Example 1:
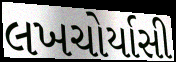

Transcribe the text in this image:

લખચોર્યાસી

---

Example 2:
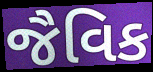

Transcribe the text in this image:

જૈવિક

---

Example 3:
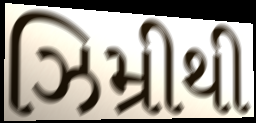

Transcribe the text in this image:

ઝિમ્રીથી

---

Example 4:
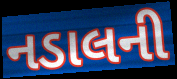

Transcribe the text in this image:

નડાલની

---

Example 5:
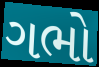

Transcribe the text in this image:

ગભો